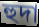
হুদা